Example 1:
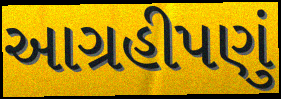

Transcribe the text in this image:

આગ્રહીપણું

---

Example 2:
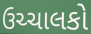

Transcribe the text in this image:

ઉચ્ચાલકો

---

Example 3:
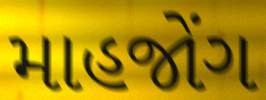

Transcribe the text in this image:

માહજોંગ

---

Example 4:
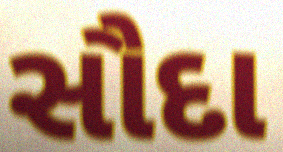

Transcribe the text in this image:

સૌદા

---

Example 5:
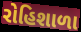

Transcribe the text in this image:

રોહિશાળા